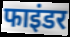
फाइंडर